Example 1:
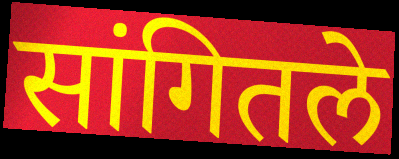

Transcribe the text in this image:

सांगितले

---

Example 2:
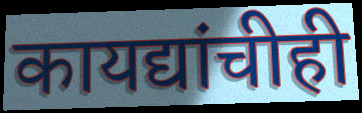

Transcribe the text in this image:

कायद्यांचीही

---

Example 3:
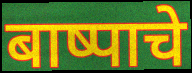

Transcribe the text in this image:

बाष्पाचे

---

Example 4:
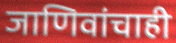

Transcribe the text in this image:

जाणिवांचाही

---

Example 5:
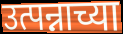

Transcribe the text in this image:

उत्पन्नाच्या